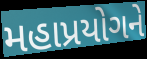
મહાપ્રયોગને